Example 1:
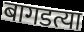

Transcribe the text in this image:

बागडत्या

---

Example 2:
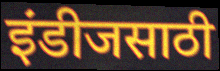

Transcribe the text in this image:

इंडीजसाठी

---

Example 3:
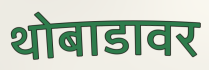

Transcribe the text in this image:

थोबाडावर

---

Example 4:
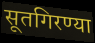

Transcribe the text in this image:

सूतगिरण्या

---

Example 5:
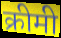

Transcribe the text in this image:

क्रीमी